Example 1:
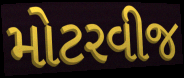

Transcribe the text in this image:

મોટરવીજ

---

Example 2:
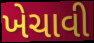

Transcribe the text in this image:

ખેચાવી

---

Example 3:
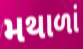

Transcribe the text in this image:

મથાળાં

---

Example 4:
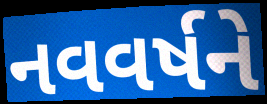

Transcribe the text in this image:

નવવર્ષને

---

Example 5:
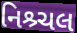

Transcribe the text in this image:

નિશ્ર્ચલ